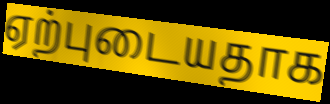
ஏற்புடையதாக